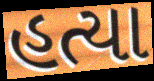
હત્યા